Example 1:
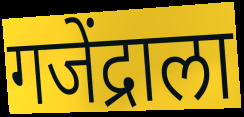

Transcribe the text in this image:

गजेंद्राला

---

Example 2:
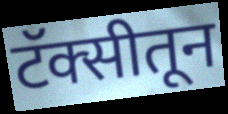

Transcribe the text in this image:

टॅक्‍सीतून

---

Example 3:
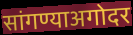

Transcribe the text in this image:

सांगण्याअगोदर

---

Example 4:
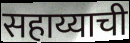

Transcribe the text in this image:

सहाय्याची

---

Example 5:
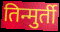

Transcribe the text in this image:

तिन्मुर्ती